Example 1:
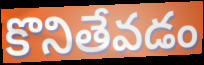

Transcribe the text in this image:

కొనితేవడం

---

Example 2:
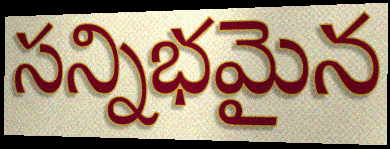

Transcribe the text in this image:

సన్నిభమైన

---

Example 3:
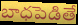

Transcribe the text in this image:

బాధపెడితే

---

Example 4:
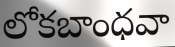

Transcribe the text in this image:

లోకబాంధవా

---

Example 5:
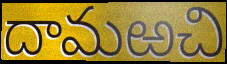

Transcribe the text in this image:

దామఱచి